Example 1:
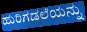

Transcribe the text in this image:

ಹುರಿಗಡಲೆಯನ್ನು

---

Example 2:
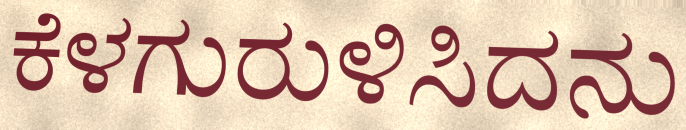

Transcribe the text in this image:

ಕೆಳಗುರುಳಿಸಿದನು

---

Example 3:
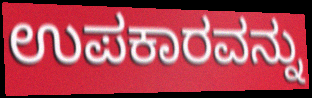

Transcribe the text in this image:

ಉಪಕಾರವನ್ನು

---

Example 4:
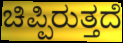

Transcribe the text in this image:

ಚಿಪ್ಪಿರುತ್ತದೆ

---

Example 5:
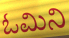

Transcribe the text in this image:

ಓಮಿನಿ